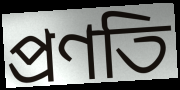
প্ৰণতি